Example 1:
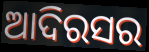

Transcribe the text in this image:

ଆଦିରସର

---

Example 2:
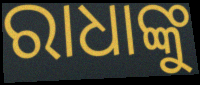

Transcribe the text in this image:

ରାଧାଙ୍କୁ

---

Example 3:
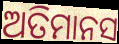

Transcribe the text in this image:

ଅତିମାନସ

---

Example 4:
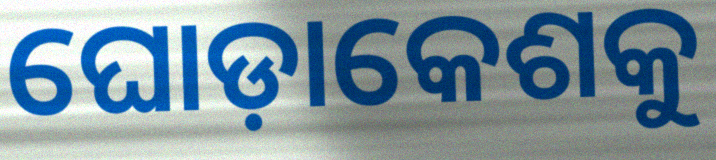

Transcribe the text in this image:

ଘୋଡ଼ାକେଶକୁ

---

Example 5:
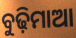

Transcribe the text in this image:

ବୁଢ଼ିମାଆ